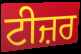
ਟੀਜ਼ਰ